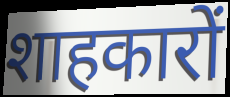
शाहकारों